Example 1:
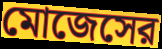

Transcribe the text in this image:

মোজেসের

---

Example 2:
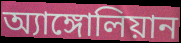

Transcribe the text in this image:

অ্যাঙ্গোলিয়ান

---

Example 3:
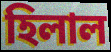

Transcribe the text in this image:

হিলাল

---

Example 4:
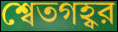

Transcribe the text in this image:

শ্বেতগহ্বর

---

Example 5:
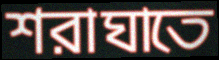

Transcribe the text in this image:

শরাঘাতে